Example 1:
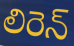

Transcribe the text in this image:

లిరెన్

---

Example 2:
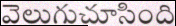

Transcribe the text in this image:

వెలుగుచూసింది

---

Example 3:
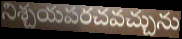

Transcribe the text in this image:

నిశ్చయపరచవచ్చును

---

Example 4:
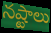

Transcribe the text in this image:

నష్టాలు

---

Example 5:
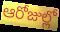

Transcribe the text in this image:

ఆరోజుల్లో